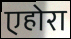
एहोरा